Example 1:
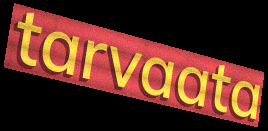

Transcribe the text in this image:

tarvaata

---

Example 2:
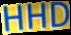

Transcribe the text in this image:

HHD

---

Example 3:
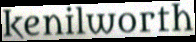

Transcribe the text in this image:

kenilworth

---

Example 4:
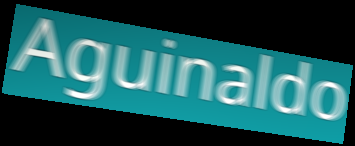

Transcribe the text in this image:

Aguinaldo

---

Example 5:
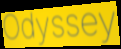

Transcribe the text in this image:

Odyssey